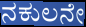
ನಕುಲನೇ